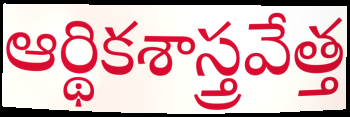
ఆర్థికశాస్త్రవేత్త